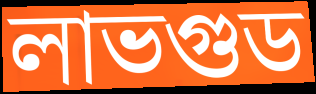
লাভগুড